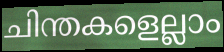
ചിന്തകളെല്ലാം